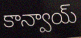
కాన్వాయ్